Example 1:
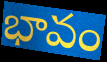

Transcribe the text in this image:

భావం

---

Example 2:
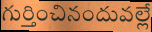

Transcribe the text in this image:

గుర్తించినందువల్లే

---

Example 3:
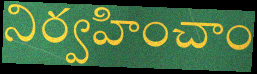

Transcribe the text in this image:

నిర్వహించాం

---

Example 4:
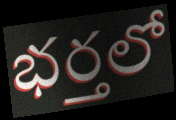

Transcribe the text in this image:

భర్తలో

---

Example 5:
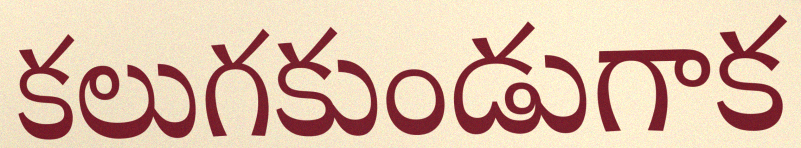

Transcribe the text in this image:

కలుగకుండుగాక